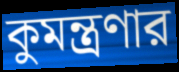
কুমন্ত্রণার